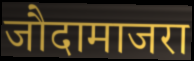
जौदामाजरा